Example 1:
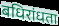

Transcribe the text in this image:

बधिरांधता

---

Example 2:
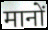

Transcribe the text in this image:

मानों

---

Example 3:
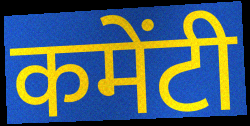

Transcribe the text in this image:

कमेंटी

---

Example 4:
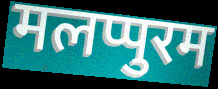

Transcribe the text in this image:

मलप्पुरम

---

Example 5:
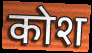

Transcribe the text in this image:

कोश